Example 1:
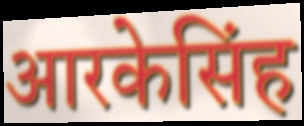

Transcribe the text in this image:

आरकेसिंह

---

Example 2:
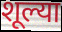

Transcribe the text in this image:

शूल्या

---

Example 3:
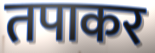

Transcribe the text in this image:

तपाकर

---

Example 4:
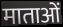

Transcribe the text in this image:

माताओं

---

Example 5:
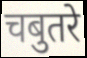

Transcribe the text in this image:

चबुतरे